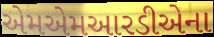
એમએમઆરડીએના